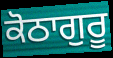
ਕੋਠਾਗੁਰੂ